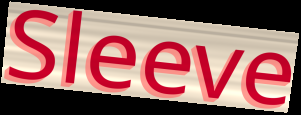
Sleeve